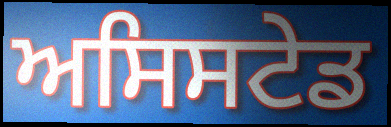
ਅਸਿਸਟੇਡ